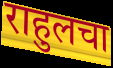
राहुलचा